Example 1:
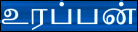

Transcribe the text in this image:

உரப்பன்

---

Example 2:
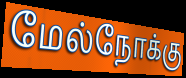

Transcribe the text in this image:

மேல்நோக்கு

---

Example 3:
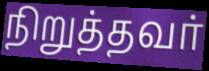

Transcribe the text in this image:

நிறுத்தவர்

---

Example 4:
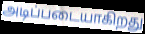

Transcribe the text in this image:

அடிப்படையாகிறது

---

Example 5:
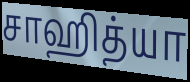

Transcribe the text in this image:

சாஹித்யா